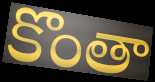
కొంతా